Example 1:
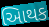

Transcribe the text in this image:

આિથક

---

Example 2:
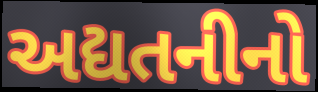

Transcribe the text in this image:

અદ્યતનીનો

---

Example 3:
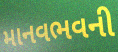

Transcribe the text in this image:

માનવભવની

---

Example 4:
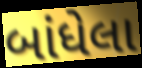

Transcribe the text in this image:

બાંધેલા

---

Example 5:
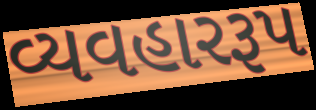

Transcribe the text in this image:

વ્યવહારરૂપ